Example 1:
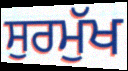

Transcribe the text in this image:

ਸੁਰਮੁੱਖ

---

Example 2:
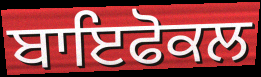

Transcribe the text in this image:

ਬਾਇਫੋਕਲ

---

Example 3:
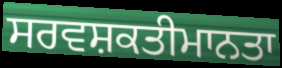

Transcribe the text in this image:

ਸਰਵਸ਼ਕਤੀਮਾਨਤਾ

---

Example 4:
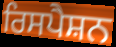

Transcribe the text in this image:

ਰਿਸਪੈਸ਼ਨ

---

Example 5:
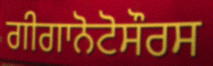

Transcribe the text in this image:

ਗੀਗਾਨੋਟੋਸੌਰਸ